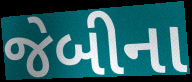
જેબીના